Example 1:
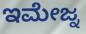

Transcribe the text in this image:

ಇಮೇಜ್ನ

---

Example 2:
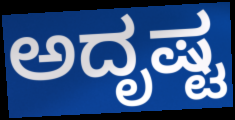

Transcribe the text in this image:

ಅದೃಷ್ಟ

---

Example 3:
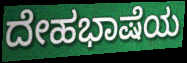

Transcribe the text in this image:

ದೇಹಭಾಷೆಯ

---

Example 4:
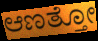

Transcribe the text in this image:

ಆಣತ್ತೋ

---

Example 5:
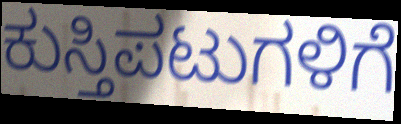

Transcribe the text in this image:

ಕುಸ್ತಿಪಟುಗಳಿಗೆ